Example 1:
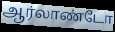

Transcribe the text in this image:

ஆர்லாண்டோ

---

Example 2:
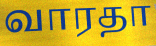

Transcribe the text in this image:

வாரதா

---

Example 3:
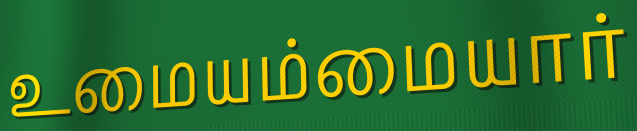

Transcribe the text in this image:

உமையம்மையார்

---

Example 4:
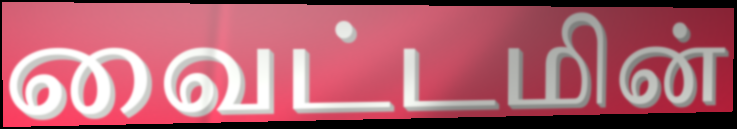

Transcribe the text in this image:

வைட்டமின்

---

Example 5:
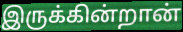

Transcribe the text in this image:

இருக்கின்றான்